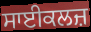
ਸਾਈਕਲਜ਼